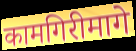
कामगिरीमागे